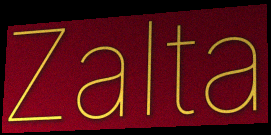
Zalta